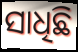
ସାଧିଛି